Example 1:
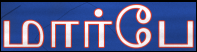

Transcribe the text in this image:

மார்பே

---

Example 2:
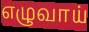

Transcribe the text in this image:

எழுவாய்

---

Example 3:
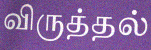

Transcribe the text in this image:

விருத்தல்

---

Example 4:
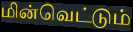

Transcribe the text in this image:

மின்வெட்டும்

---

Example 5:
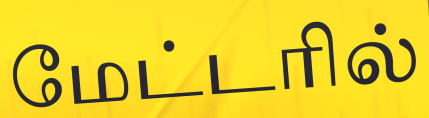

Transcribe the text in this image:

மேட்டரில்